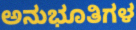
ಅನುಭೂತಿಗಳ